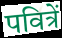
पवित्रें